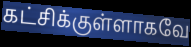
கட்சிக்குள்ளாகவே